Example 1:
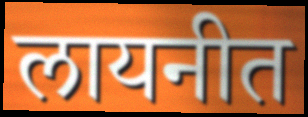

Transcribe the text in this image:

लायनीत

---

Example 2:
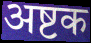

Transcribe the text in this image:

अष्टक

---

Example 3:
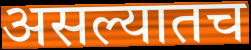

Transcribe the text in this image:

असल्यातच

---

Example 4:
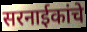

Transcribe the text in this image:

सरनाईकांचे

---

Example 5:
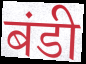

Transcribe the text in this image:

बंडी